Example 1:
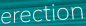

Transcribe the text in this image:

erection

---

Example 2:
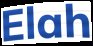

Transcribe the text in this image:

Elah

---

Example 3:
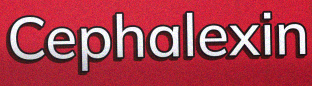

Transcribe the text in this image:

Cephalexin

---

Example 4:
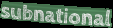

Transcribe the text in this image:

subnational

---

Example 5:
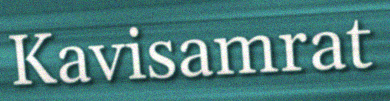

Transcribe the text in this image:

Kavisamrat